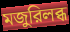
মজুরিলব্ধ